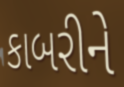
કાબરીને